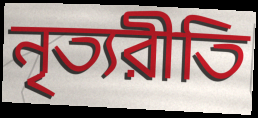
নৃত্যরীতি